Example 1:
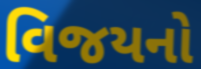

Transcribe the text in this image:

વિજયનો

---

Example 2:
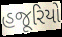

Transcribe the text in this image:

હજૂરિયો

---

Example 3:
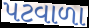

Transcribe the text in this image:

પટવાળા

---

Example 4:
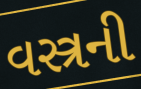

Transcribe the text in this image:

વસ્ત્રની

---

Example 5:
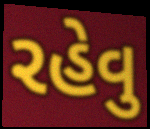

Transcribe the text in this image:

રહેવુ